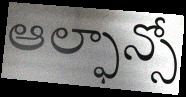
ఆల్ఫాన్సో